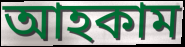
আহকাম